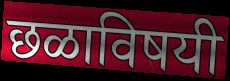
छळाविषयी